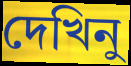
দেখিনু